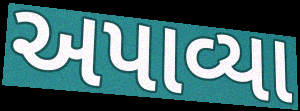
અપાવ્યા